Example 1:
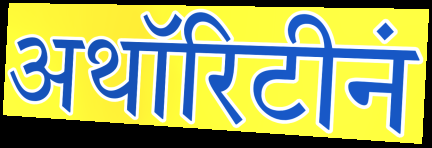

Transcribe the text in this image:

अथॉरिटीनं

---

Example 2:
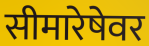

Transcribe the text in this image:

सीमारेषेवर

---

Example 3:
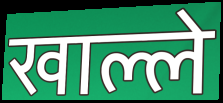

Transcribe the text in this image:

खाल्ले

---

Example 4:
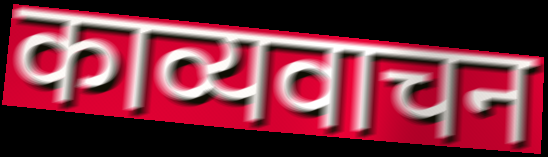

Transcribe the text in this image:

काव्यवाचन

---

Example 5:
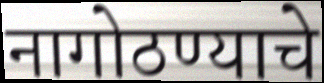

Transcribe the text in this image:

नागोठण्याचे